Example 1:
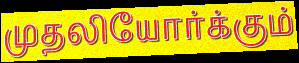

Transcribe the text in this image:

முதலியோர்க்கும்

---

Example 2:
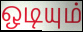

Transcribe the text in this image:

ஒடியும்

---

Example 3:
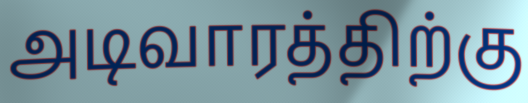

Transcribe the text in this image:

அடிவாரத்திற்கு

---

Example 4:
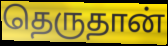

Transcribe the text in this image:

தெருதான்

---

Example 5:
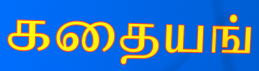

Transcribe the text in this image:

கதையங்